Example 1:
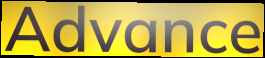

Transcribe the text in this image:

Advance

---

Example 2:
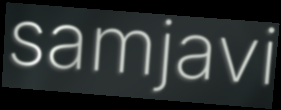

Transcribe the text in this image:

samjavi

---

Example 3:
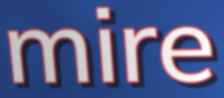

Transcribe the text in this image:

mire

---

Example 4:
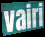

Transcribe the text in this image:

vairi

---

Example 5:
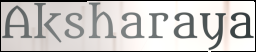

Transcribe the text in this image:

Aksharaya